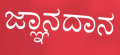
ಜ್ಞಾನದಾನ